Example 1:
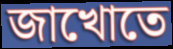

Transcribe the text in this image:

জাখোতে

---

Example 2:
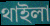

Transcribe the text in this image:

থাইলা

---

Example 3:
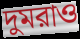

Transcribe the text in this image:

দুমরাও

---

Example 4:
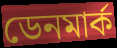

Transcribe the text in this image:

ডেনমার্ক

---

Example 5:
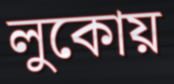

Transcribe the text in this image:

লুকোয়